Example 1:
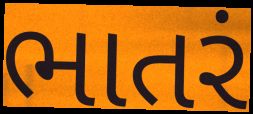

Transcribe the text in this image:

ભાતરં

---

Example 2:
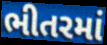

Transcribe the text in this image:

ભીતરમાં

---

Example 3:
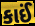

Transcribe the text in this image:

કાઈં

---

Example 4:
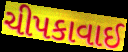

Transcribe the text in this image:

ચીપકાવાઈ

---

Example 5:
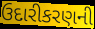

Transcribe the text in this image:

ઉદારીકરણની